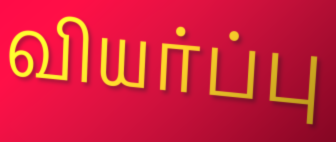
வியர்ப்பு